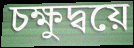
চক্ষুদ্বয়ে